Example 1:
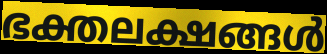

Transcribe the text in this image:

ഭക്തലക്ഷങ്ങൾ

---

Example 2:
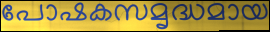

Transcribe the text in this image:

പോഷകസമൃദ്ധമായ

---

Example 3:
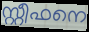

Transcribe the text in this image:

സ്റ്റീഫനെ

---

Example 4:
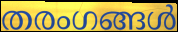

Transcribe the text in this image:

തരംഗങ്ങൾ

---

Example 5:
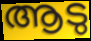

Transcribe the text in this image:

ആടു